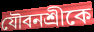
যৌবনশ্রীকে